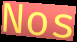
Nos